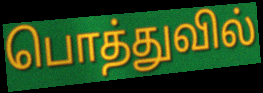
பொத்துவில்